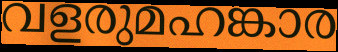
വളരുമഹങ്കാര